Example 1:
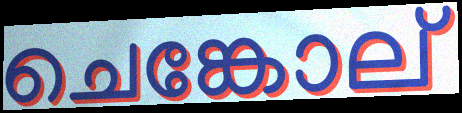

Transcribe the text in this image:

ചെങ്കോല്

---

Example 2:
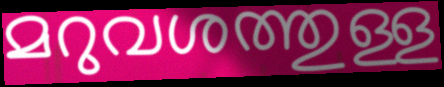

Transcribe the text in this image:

മറുവശത്തുള്ള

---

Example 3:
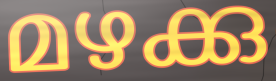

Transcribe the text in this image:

മഴക്കു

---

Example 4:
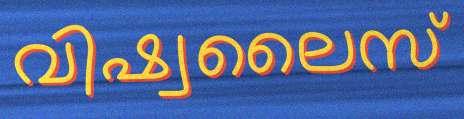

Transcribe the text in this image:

വിഷ്വലൈസ്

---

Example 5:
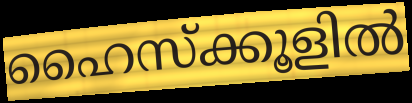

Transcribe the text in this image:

ഹൈസ്ക്കൂളിൽ